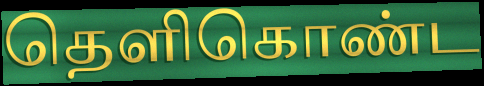
தெளிகொண்ட